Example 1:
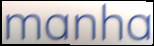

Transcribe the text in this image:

manha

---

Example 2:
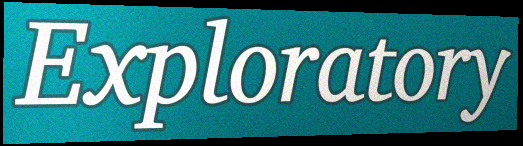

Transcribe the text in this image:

Exploratory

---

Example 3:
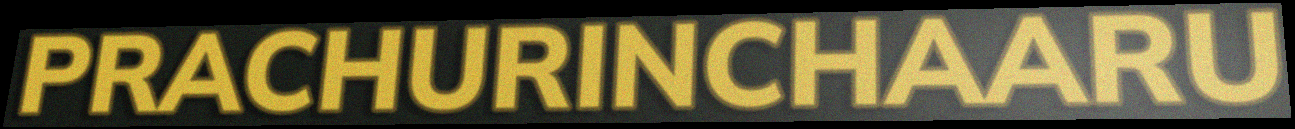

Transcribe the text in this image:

PRACHURINCHAARU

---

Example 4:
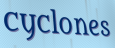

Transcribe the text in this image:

cyclones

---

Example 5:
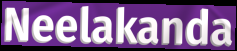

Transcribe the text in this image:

Neelakanda